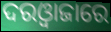
ଦରଓ୍ୱାଜାରେ